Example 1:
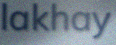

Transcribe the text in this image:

lakhay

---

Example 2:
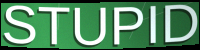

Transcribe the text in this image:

STUPID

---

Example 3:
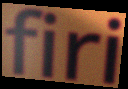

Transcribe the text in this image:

firi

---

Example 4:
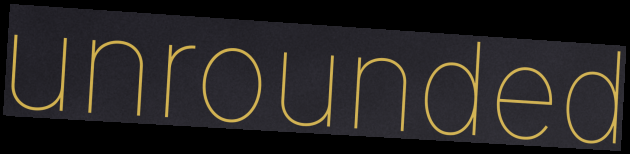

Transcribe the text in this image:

unrounded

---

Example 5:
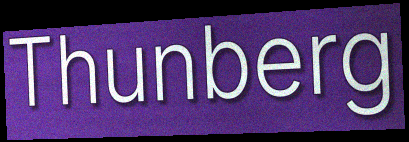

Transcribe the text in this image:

Thunberg